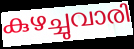
കുഴച്ചുവാരി